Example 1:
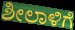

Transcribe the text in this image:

ಶೀಲಾಳಿಗೆ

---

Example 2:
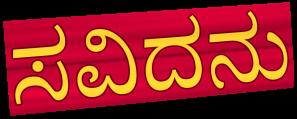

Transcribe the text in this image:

ಸವಿದನು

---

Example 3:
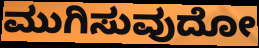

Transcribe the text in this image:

ಮುಗಿಸುವುದೋ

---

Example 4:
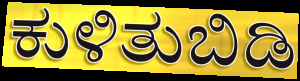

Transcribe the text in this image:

ಕುಳಿತುಬಿಡಿ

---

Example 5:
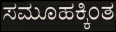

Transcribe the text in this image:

ಸಮೂಹಕ್ಕಿಂತ